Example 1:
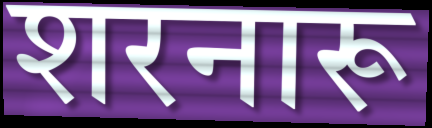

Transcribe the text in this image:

शरनारू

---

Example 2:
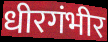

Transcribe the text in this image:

धीरगंभीर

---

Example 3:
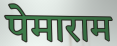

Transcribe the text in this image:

पेमाराम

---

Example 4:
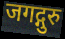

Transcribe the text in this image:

जगद्गुरु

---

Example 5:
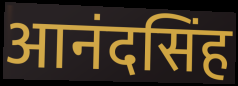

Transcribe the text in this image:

आनंदसिंह